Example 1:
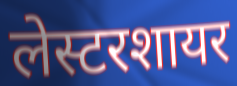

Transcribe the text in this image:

लेस्टरशायर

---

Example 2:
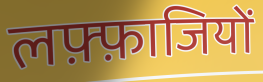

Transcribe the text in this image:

लफ़्फ़ाजियों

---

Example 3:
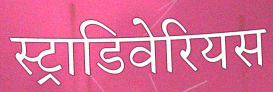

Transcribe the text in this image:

स्ट्राडिवेरियस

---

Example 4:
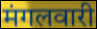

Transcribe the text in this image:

मंगलवारी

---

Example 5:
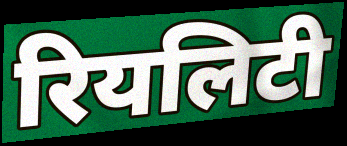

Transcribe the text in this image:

रियलिटी